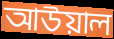
আউয়াল